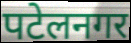
पटेलनगर